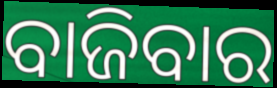
ବାଜିବାର